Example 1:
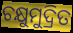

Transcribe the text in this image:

ଚକ୍ଷୁମୁଦ୍ରିତ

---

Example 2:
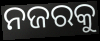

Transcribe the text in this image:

ନଜରକୁ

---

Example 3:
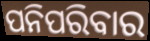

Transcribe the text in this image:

ପନିପରିବାର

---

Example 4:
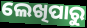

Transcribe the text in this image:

ଲେଖିପାରୁ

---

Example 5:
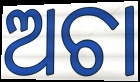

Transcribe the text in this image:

ଅଚା